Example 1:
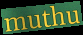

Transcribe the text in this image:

muthu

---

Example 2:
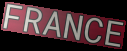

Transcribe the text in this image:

FRANCE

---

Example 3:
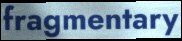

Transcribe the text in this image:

fragmentary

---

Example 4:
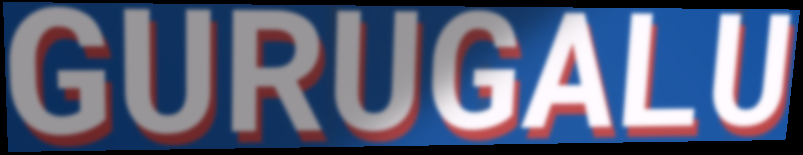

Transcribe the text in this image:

GURUGALU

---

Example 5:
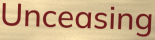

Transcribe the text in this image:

Unceasing